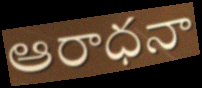
ఆరాధనా